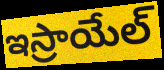
ఇస్రాయేల్